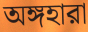
অঙ্গহারা